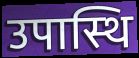
उपास्थि